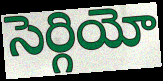
సెర్గియో